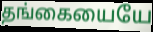
தங்கையையே